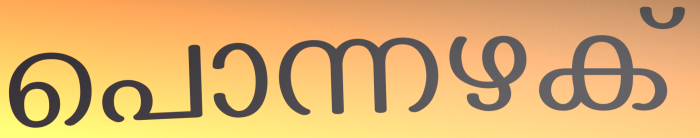
പൊന്നഴക്